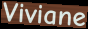
Viviane